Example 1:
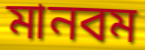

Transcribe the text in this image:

মানবম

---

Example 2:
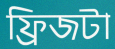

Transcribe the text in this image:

ফ্রিজটা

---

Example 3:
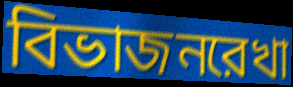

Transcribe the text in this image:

বিভাজনরেখা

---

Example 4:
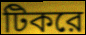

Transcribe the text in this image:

টিকরে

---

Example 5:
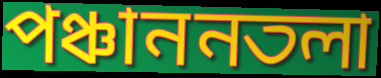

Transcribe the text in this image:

পঞ্চাননতলা